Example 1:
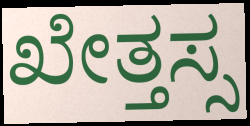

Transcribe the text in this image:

ಖೇತ್ತಸ್ಸ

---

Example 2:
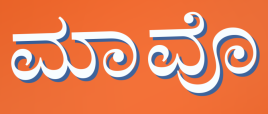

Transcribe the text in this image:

ಮಾವೊ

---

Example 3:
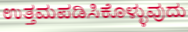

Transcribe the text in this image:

ಉತ್ತಮಪಡಿಸಿಕೊಳ್ಳುವುದು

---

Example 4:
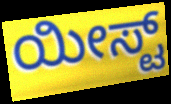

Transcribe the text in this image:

ಯೀಸ್ಟ್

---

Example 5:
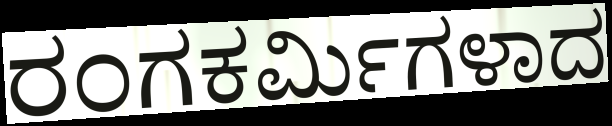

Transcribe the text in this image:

ರಂಗಕರ್ಮಿಗಳಾದ